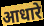
आधारे